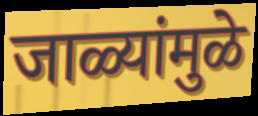
जाळ्यांमुळे